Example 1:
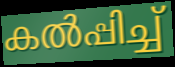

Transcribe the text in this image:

കൽപ്പിച്ച്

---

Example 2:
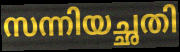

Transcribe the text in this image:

സന്നിയച്ഛതി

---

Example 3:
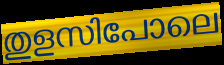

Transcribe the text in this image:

തുളസിപോലെ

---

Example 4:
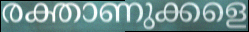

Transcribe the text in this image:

രക്താണുക്കളെ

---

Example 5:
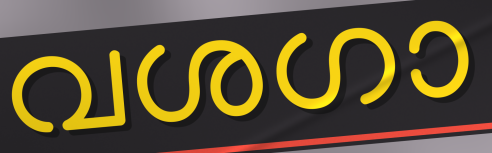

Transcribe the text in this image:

വശഗാ